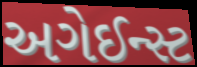
અગેઈન્સ્ટ